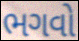
ભગવો